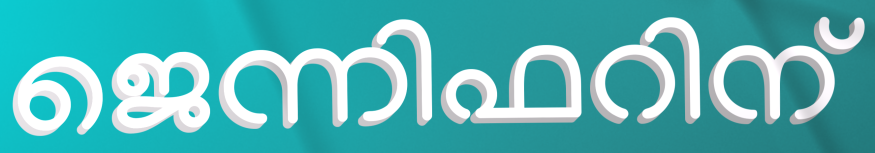
ജെന്നിഫറിന്